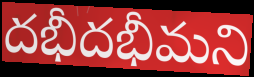
దభీదభీమని